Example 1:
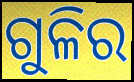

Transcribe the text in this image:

ଗୁଳିର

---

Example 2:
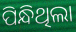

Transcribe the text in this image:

ପିନ୍ଧିଥିଲା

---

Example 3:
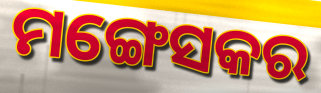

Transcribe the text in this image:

ମଙ୍ଗେସକର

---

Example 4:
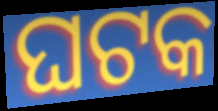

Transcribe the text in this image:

ଘଟକ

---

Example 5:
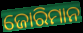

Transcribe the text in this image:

ଜୋରିମାନ